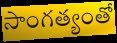
సాంగత్యంతో